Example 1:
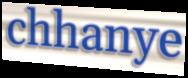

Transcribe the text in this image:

chhanye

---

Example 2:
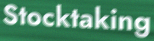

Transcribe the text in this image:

Stocktaking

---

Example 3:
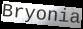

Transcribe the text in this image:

Bryonia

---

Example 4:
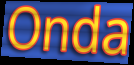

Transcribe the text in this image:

Onda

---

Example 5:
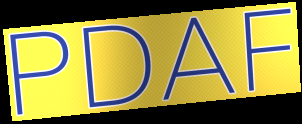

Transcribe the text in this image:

PDAF